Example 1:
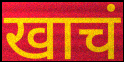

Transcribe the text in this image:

खाचं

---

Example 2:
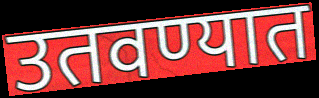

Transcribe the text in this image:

उतवण्यात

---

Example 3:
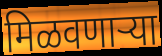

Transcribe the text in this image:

मिळवणाऱ्या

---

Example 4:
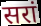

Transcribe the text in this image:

सरां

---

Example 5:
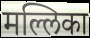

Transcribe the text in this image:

मल्लिका